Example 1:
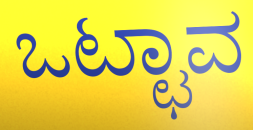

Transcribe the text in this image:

ಒಟ್ಟಾವ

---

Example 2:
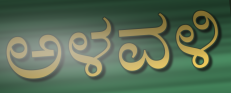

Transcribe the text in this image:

ಅಳವಳಿ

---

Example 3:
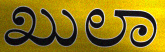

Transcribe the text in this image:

ಖುಲಾ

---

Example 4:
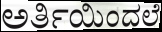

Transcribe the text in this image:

ಅರ್ತಿಯಿಂದಲೆ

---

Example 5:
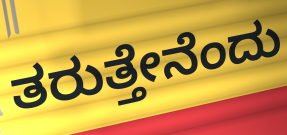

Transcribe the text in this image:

ತರುತ್ತೇನೆಂದು